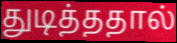
துடித்ததால்